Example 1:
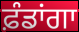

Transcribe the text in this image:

ਫ਼ੰਡਾਂਗਾ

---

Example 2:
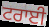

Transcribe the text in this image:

ਟਰਾਈ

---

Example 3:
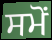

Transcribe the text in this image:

ਸਮੋਂ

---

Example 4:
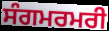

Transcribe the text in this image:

ਸੰਗਮਰਮਰੀ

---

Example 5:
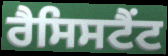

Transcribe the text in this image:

ਰੈਸਿਸਟੈਂਟ